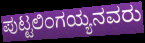
ಪುಟ್ಟಲಿಂಗಯ್ಯನವರು